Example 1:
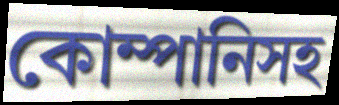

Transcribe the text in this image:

কোম্পানিসহ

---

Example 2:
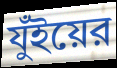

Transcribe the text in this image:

যুঁইয়ের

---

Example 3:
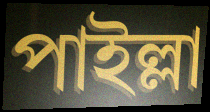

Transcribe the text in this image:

পাইল্লা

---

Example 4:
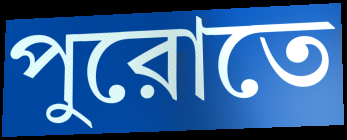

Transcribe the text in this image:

পুরোতে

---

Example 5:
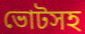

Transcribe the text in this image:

ভোটসহ